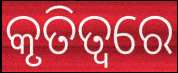
କୃତିତ୍ୱରେ